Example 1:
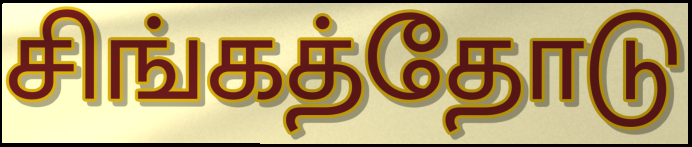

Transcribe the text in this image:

சிங்கத்தோடு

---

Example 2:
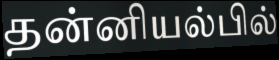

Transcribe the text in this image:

தன்னியல்பில்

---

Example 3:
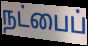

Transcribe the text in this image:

நட்பைப்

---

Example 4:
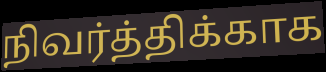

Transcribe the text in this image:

நிவர்த்திக்காக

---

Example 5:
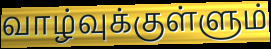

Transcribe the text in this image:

வாழ்வுக்குள்ளும்